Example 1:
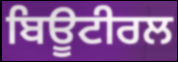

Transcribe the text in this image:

ਬਿਊਟੀਰਲ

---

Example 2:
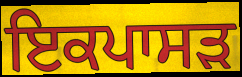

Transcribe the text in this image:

ਇਕਪਾਸੜ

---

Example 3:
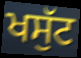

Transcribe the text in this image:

ਖਸੁੱਟ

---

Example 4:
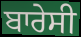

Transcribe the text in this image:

ਬਾਰੇਸੀ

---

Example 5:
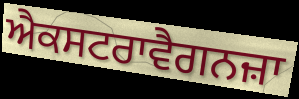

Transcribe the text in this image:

ਐਕਸਟਰਾਵੈਗਨਜ਼ਾ